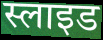
स्‍लाइड